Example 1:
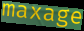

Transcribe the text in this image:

maxage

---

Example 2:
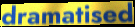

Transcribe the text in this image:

dramatised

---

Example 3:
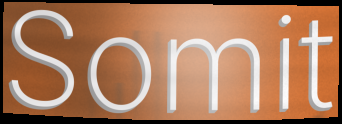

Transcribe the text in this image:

Somit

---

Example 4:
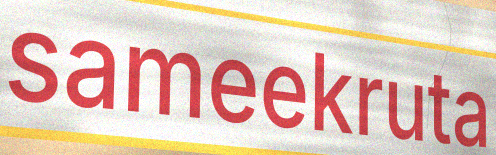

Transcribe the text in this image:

sameekruta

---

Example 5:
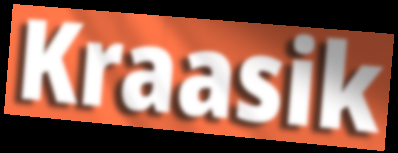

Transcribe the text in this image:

Kraasik